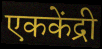
एककेंद्री